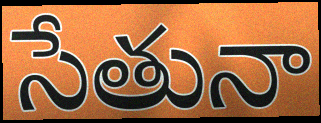
సేతునా